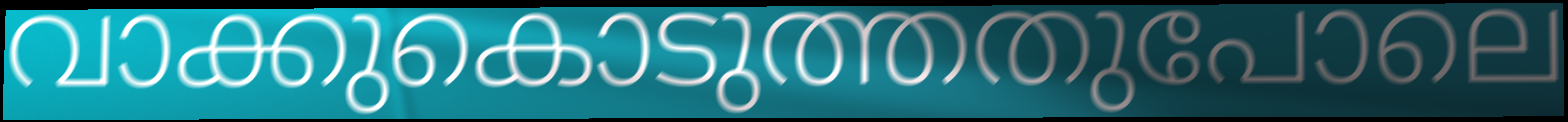
വാക്കുകൊടുത്തതുപോലെ